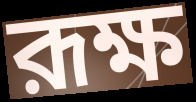
রূক্ষ